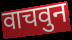
वाचवुन